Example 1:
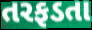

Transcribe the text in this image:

તરફડતા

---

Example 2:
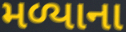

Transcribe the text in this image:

મળ્યાના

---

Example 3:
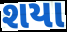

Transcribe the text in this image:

શયા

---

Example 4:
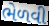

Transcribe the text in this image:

ભેળવી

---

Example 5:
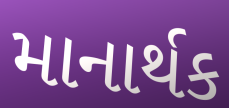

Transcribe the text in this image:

માનાર્થક